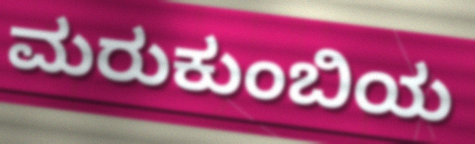
ಮರುಕುಂಬಿಯ